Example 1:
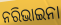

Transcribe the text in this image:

ନରିଭାଇନା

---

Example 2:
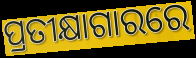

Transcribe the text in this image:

ପ୍ରତୀକ୍ଷାଗାରରେ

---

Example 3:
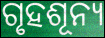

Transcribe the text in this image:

ଗୃହଶୂନ୍ୟ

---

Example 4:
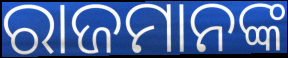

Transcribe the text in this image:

ରାଜମାନଙ୍କ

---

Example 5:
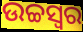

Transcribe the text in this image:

ଉଚ୍ଚସ୍ଵର